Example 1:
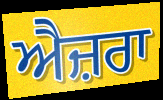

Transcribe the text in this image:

ਐਜ਼ਰਾ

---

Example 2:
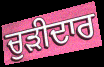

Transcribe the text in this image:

ਚੁੜੀਦਾਰ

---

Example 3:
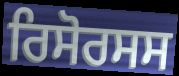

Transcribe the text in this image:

ਰਿਸੋਰਸਸ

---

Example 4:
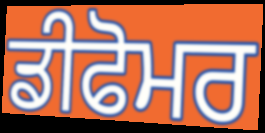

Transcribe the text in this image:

ਡੀਫੋਮਰ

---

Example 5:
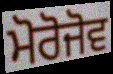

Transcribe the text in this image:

ਮੋਰੋਜੋਵ